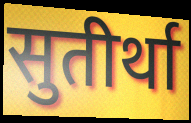
सुतीर्था